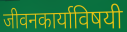
जीवनकार्याविषयी